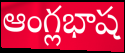
ఆంగ్లభాష